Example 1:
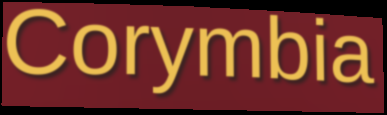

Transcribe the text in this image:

Corymbia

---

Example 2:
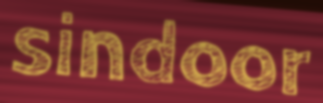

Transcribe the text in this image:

sindoor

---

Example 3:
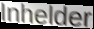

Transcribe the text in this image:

Inhelder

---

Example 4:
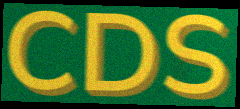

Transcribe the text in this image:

CDS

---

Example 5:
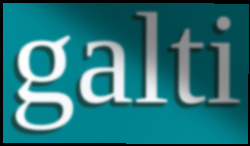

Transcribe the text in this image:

galti